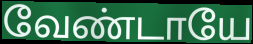
வேண்டாயே